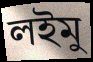
লইমু